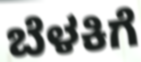
ಬೆಳಕಿಗೆ